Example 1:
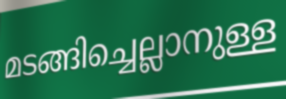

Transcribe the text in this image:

മടങ്ങിച്ചെല്ലാനുള്ള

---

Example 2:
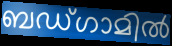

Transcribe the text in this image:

ബഡ്ഗാമിൽ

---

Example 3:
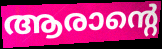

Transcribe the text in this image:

ആരാന്റെ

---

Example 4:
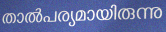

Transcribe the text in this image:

താൽപര്യമായിരുന്നു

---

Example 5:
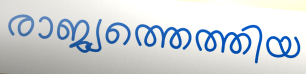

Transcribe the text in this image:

രാജ്യത്തെത്തിയ